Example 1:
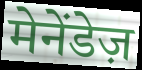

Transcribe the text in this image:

मेनेंडेज़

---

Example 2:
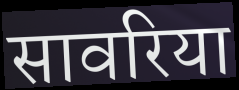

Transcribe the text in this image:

सावरिया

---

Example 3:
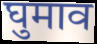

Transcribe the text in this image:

घुमाव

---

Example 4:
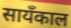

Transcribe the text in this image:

सायँकाल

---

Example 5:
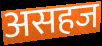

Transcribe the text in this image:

असहज